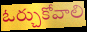
ఓర్చుకోవాలి